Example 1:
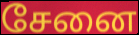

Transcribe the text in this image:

சேனை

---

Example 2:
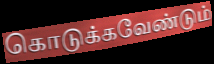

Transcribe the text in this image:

கொடுக்கவேண்டும்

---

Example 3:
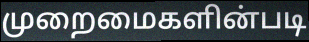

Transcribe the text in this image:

முறைமைகளின்படி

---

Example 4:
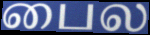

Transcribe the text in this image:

பைல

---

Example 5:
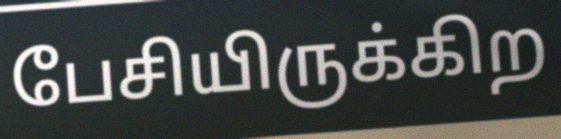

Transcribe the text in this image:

பேசியிருக்கிற